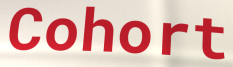
Cohort